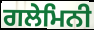
ਗਲੇਮਿਨੀ